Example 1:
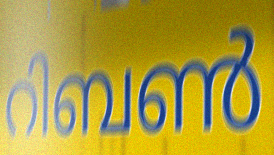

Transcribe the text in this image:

റിബൺ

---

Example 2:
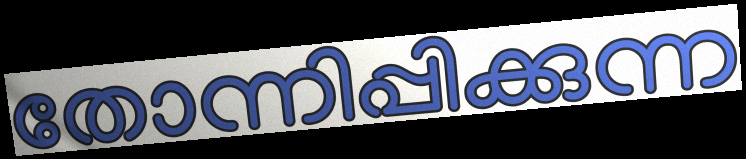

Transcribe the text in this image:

തോന്നിപ്പിക്കുന്ന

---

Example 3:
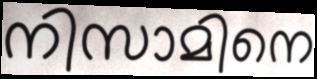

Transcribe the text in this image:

നിസാമിനെ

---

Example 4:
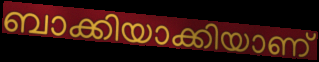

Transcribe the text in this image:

ബാക്കിയാക്കിയാണ്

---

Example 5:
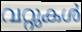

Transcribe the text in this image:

വറ്റുകൾ